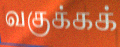
வகுக்கக்